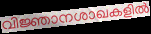
വിജ്ഞാനശാഖകളിൽ